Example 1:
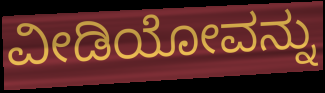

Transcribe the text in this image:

ವೀಡಿಯೋವನ್ನು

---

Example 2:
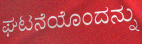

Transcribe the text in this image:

ಘಟನೆಯೊಂದನ್ನು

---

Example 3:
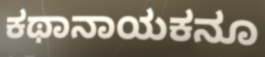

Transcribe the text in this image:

ಕಥಾನಾಯಕನೂ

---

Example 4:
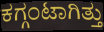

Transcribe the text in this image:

ಕಗ್ಗಂಟಾಗಿತ್ತು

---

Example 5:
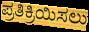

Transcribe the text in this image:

ಪ್ರತಿಕ್ರಿಯಿಸಲು